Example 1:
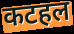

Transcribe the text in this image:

कटहल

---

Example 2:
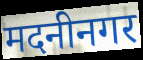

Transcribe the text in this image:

मदनीनगर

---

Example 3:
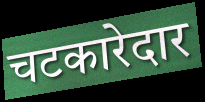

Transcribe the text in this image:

चटकारेदार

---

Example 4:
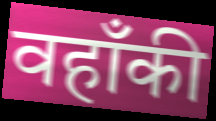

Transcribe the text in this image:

वहाँकी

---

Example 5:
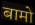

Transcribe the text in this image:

बामो